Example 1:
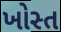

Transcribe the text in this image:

ખોસ્ત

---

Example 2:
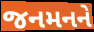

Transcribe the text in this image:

જનમનને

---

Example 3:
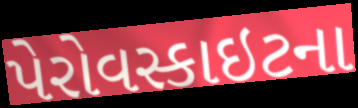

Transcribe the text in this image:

પેરોવસ્કાઇટના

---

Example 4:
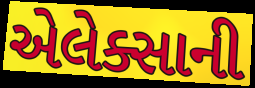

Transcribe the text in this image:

એલેક્સાની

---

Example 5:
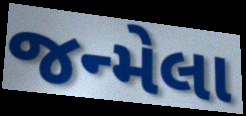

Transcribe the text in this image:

જન્મેલા